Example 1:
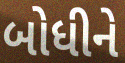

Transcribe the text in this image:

બોધીને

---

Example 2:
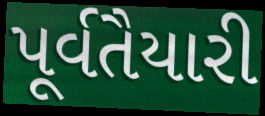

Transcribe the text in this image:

પૂર્વતૈયારી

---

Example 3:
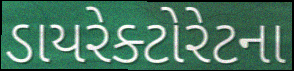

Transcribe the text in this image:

ડાયરેક્ટોરેટના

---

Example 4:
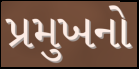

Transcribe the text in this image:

પ્રમુખનો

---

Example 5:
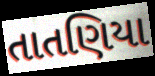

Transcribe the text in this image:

તાતણિયા